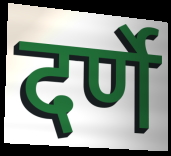
दर्णे